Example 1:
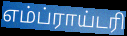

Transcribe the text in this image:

எம்ப்ராய்டரி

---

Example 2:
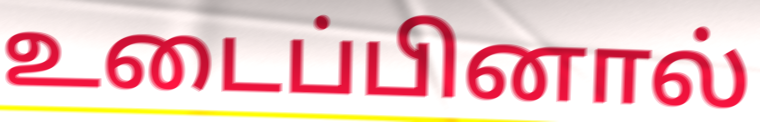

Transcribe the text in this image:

உடைப்பினால்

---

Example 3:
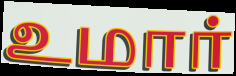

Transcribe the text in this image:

உமார்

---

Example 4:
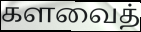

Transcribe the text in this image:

களவைத்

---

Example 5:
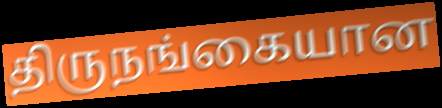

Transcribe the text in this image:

திருநங்கையான